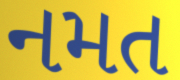
નમત